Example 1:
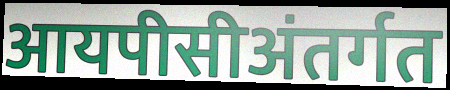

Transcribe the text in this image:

आयपीसीअंतर्गत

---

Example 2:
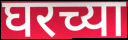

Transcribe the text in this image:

घरच्या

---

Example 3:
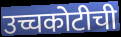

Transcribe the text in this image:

उच्चकोटीची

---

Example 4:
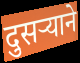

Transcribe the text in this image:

दुसर्‍याने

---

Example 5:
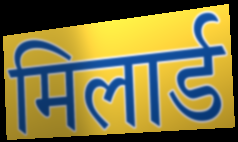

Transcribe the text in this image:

मिलार्ड